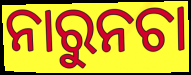
ନାରୁନଚା